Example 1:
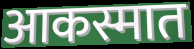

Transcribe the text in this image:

आकस्मात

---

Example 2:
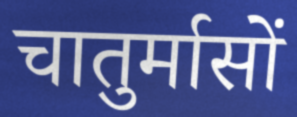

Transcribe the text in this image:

चातुर्मासों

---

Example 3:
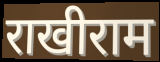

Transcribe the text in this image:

राखीराम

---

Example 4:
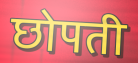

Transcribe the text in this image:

छोपती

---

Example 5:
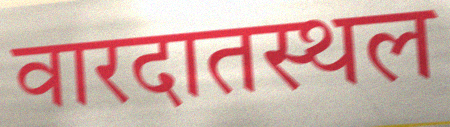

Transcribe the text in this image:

वारदातस्थल